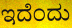
ಇದೆಂದು